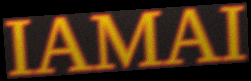
IAMAI